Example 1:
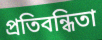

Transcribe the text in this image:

প্রতিবন্ধিতা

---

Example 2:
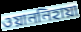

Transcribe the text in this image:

ওয়াননিহায়া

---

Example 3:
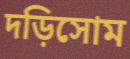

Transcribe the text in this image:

দড়িসোম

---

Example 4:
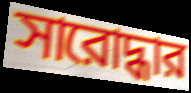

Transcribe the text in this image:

সারোদ্ধার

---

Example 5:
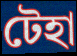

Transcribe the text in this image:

টেহা